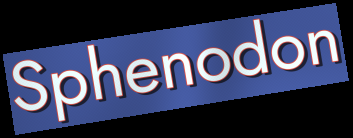
Sphenodon